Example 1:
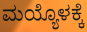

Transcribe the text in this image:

ಮಯ್ಯೊಳಕ್ಕೆ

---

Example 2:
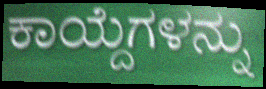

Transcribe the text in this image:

ಕಾಯ್ದೆಗಳನ್ನು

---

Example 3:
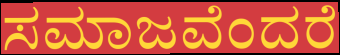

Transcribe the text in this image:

ಸಮಾಜವೆಂದರೆ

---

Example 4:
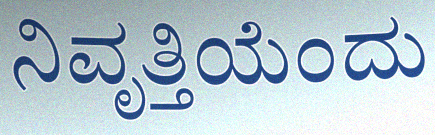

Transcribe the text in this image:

ನಿವೃತ್ತಿಯೆಂದು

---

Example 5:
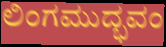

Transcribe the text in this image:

ಲಿಂಗಮುದ್ಭವಂ